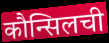
कौन्सिलची